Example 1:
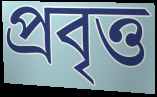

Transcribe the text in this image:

প্রবৃত্ত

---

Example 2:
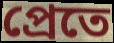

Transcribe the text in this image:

প্রেতে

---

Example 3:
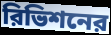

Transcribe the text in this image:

রিভিশনের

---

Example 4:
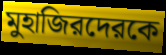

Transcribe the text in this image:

মুহাজিরদেরকে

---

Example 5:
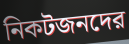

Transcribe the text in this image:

নিকটজনদের